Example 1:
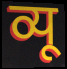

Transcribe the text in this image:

व्यू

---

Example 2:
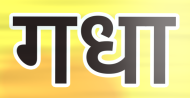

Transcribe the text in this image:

गधा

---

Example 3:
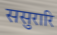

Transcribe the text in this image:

ससुरारि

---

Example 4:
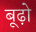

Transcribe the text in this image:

बूढ़ो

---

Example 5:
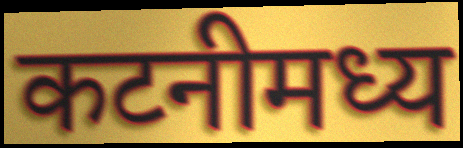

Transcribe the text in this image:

कटनीमध्य